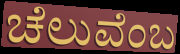
ಚೆಲುವೆಂಬ